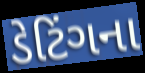
ડેટિંગના